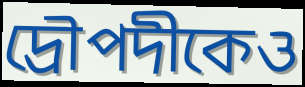
দ্রৌপদীকেও